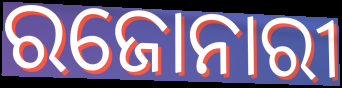
ରଜୋନାରୀ